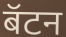
बॅटन